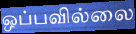
ஒப்பவில்லை